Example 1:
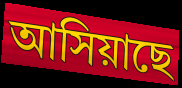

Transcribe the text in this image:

আসিয়াছে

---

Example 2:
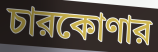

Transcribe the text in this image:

চারকোণার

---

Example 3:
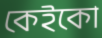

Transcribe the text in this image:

কেইকো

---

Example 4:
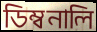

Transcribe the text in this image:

ডিম্বনালি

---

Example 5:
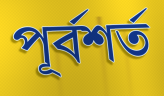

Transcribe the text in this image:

পূর্বশর্ত